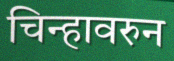
चिन्हावरुन